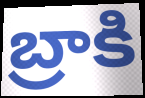
బ్రాకి